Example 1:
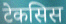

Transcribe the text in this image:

टेकसिस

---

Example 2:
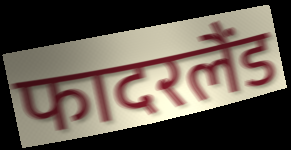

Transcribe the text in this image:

फादरलैंड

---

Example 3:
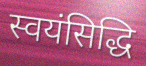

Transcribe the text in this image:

स्वयंसिद्धि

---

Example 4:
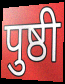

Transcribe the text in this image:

पुष्ठी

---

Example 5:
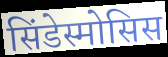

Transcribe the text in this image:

सिंडेस्मोसिस